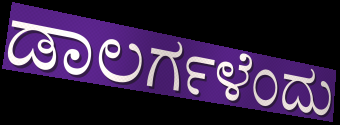
ಡಾಲರ್ಗಳೆಂದು